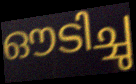
ഔടിച്ചു